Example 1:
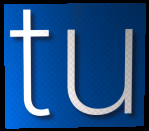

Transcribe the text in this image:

tu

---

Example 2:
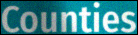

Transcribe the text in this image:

Counties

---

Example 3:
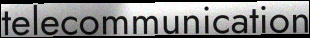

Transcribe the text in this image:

telecommunication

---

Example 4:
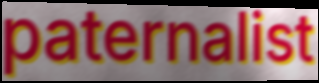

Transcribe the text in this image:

paternalist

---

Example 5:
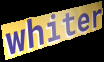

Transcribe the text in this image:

whiter